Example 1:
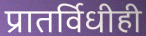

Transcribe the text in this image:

प्रातर्विधीही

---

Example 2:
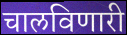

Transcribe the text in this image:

चालविणारी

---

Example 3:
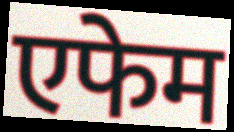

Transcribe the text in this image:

एफेम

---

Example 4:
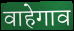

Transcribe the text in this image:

वाहेगाव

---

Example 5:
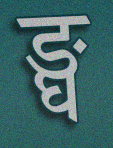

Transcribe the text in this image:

ङ्घ